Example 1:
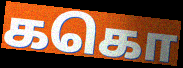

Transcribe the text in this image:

ககொ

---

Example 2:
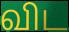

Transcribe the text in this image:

விட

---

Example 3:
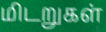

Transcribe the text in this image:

மிடறுகள்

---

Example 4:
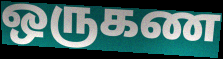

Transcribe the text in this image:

ஒருகண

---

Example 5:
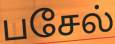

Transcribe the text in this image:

பசேல்